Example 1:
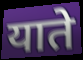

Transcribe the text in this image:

याते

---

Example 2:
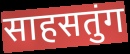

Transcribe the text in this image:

साहसतुंग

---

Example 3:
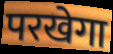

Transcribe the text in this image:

परखेगा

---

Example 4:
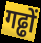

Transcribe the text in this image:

गढ्ढों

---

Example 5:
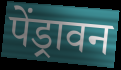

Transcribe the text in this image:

पेंड्रावन